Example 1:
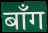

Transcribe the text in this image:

बाँग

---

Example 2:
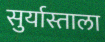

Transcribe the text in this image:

सुर्यास्ताला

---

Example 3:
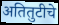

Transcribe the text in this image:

अतितुटीचे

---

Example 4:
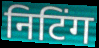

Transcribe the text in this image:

निटिंग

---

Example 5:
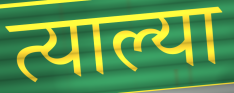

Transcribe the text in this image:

त्याल्या